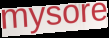
mysore